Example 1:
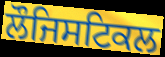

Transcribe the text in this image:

ਲੌਜਿਸਟਿਕਲ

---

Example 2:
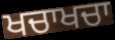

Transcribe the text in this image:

ਖਚਾਖਚਾ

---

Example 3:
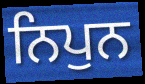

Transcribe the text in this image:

ਨਿਪੁਨ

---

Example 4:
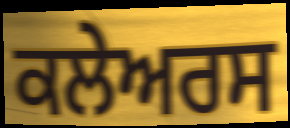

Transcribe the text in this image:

ਕਲੇਅਰਸ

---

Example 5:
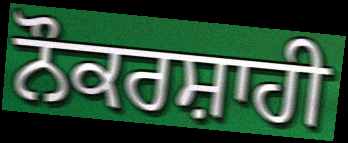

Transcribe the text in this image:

ਨੌਕਰਸ਼ਾਹੀ